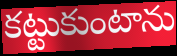
కట్టుకుంటాను